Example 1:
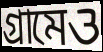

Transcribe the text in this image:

গ্রামেও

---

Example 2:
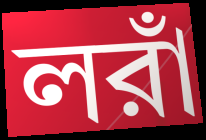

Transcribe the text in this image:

লরাঁ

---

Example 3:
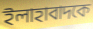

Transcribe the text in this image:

ইলাহাবাদকে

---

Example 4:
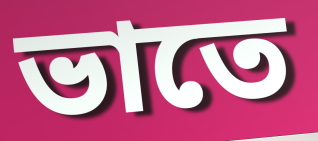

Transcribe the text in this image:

ভাতে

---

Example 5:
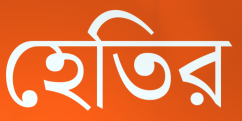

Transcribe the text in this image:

হেতির